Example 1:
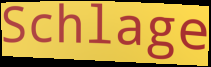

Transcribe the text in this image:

Schlage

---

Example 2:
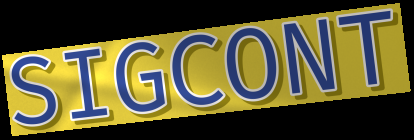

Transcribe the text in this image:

SIGCONT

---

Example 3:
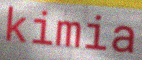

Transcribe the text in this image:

kimia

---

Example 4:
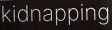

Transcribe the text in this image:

kidnapping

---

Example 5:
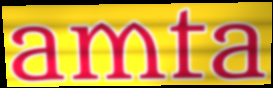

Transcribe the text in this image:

amta